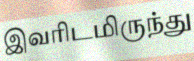
இவரிடமிருந்து